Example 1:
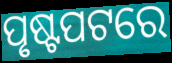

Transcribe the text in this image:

ପୃଷ୍ଟପଟରେ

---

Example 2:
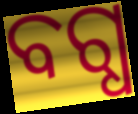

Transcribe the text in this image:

ବଗ୍ଧ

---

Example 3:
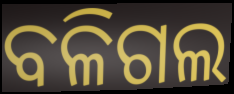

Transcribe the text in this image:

ବଳିଗଲ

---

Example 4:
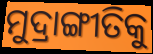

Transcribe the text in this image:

ମୁଦ୍ରାଙ୍ଗୀତିକୁ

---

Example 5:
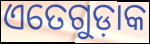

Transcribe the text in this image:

ଏତେଗୁଡ଼ାକ